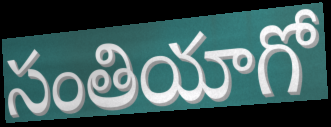
సంతియాగో